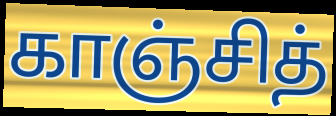
காஞ்சித்